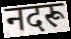
नदरू